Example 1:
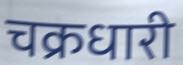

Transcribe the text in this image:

चक्रधारी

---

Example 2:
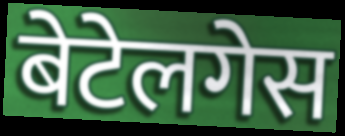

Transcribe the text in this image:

बेटेलगेस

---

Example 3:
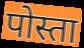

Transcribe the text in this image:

पोस्ता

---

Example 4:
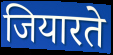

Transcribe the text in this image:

जियारते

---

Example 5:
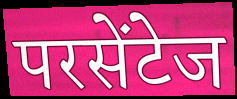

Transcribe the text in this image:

परसेंटेज